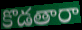
కొడతారా